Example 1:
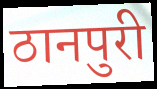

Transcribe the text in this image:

ठानपुरी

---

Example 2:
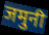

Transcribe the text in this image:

जमुनी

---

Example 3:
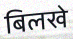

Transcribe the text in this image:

बिलखे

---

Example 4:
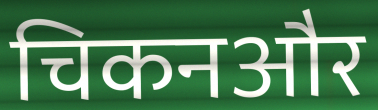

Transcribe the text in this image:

चिकनऔर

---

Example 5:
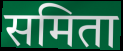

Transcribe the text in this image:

समिता